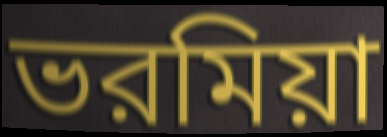
ভরমিয়া